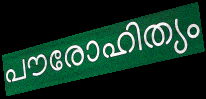
പൗരോഹിത്യം